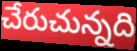
చేరుచున్నది